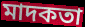
মাদকতা